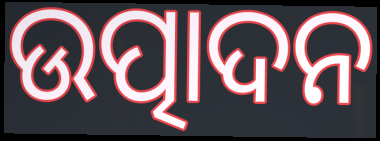
ଉତ୍ପାଦନ